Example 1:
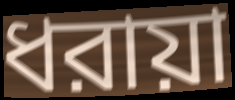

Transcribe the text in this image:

ধরায়া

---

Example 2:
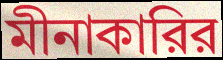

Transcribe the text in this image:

মীনাকারির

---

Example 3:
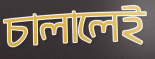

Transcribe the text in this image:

চালালেই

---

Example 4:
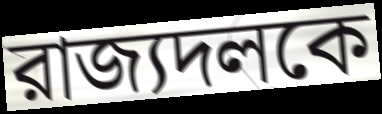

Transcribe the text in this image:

রাজ্যদলকে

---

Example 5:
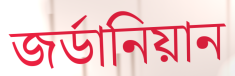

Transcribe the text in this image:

জর্ডানিয়ান